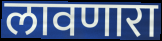
लावणारा